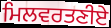
ਮਿਲਵਰਤਣੀਏ